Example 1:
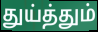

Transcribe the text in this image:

துய்த்தும்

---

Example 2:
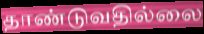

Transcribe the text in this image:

தாண்டுவதில்லை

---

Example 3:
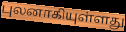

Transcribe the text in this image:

புலனாகியுள்ளது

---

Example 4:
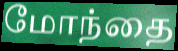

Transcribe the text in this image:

மோந்தை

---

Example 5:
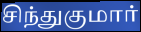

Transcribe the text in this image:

சிந்துகுமார்